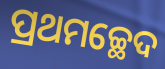
ପ୍ରଥମଚ୍ଛେଦ